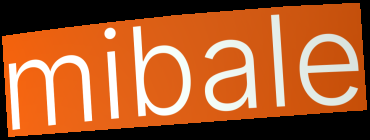
mibale